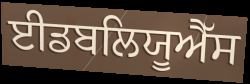
ਈਡਬਲਿਯੂਐੱਸ